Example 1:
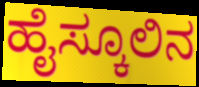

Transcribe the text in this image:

ಹೈಸ್ಕೂಲಿನ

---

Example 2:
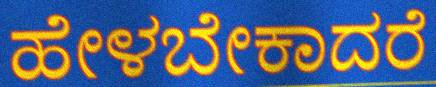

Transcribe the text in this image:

ಹೇಳಬೇಕಾದರೆ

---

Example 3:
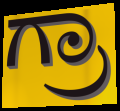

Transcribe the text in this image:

ಗ್ರಾ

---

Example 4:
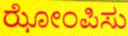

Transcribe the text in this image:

ಝೋಂಪಿಸು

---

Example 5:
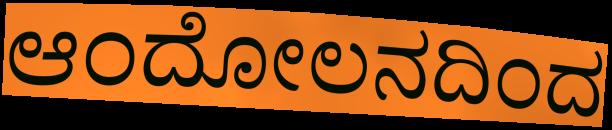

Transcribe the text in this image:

ಆಂದೋಲನದಿಂದ